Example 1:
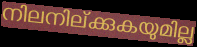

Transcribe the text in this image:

നിലനില്ക്കുകയുമില്ല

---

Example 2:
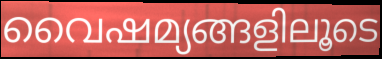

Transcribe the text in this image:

വൈഷമ്യങ്ങളിലൂടെ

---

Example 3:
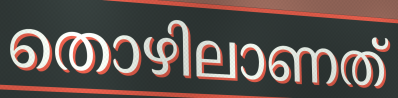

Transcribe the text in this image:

തൊഴിലാണത്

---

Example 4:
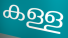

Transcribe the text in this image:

കള്ള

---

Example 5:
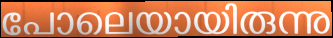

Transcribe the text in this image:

പോലെയായിരുന്നു